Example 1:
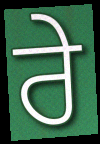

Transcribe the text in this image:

ਰੇ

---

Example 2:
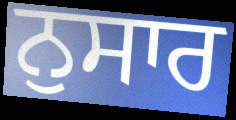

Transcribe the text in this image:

ਨੁਸਾਰ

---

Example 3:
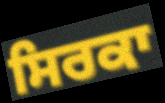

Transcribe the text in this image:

ਸਿਰਕਾ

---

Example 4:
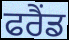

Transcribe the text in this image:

ਫਰੈਂਡ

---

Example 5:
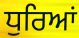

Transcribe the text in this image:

ਧੁਰਿਆਂ